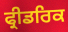
ਫ੍ਰੀਡਰਿਕ